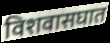
विशवासघात